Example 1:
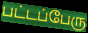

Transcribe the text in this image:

பட்டப்பேரு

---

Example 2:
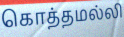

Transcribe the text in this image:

கொத்தமல்லி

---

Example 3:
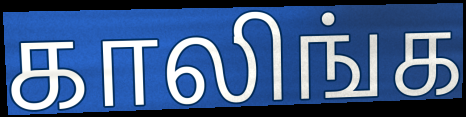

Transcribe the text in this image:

காலிங்க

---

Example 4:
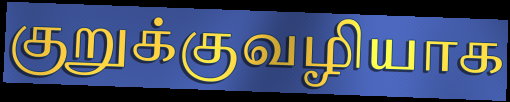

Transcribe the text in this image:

குறுக்குவழியாக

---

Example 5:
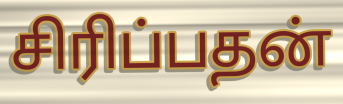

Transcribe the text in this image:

சிரிப்பதன்